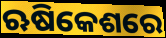
ଋଷିକେଶରେ